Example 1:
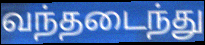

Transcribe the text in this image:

வந்தடைந்து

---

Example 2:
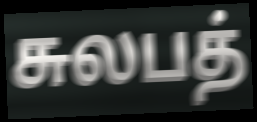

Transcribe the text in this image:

சுலபத்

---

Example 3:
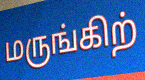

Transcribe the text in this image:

மருங்கிற்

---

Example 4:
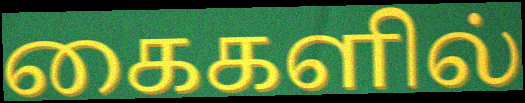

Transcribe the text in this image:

கைகளில்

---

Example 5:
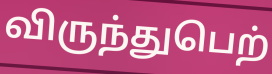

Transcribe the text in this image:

விருந்துபெற்